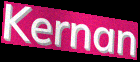
Kernan